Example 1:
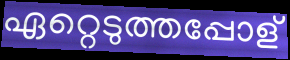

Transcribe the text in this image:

ഏറ്റെടുത്തപ്പോള്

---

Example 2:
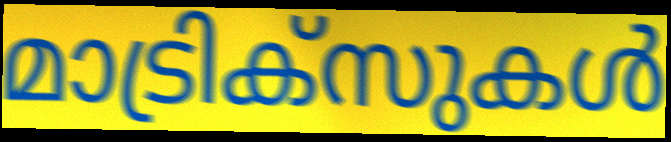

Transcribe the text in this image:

മാട്രിക്സുകൾ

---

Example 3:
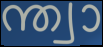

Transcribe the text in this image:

ന്ത്വാ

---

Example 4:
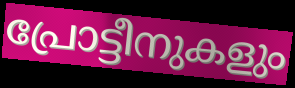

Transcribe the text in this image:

പ്രോട്ടീനുകളും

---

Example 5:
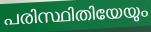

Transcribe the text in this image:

പരിസ്ഥിതിയേയും